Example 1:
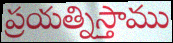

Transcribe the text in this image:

ప్రయత్నిస్తాము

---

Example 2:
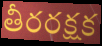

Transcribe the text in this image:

తీరరక్షక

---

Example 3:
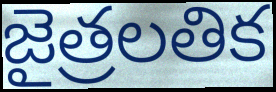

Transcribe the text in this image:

జైత్రలతిక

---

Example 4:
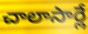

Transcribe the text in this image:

చాలాసార్లే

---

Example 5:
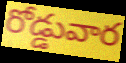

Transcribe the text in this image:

రోడ్డువార